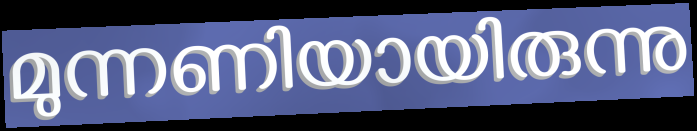
മുന്നണിയായിരുന്നു